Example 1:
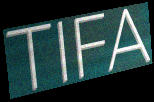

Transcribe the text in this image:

TIFA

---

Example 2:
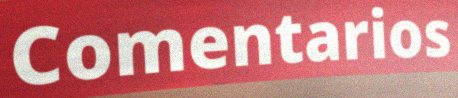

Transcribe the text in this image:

Comentarios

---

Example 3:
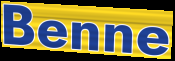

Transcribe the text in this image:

Benne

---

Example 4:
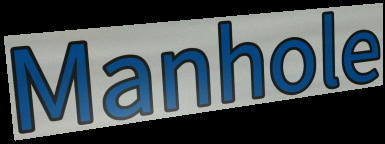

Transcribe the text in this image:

Manhole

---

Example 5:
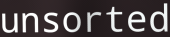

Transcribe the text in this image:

unsorted